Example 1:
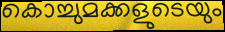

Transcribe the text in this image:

കൊച്ചുമക്കളുടെയും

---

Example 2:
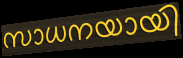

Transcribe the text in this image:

സാധനയായി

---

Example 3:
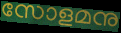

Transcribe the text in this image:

സോളമനു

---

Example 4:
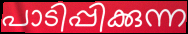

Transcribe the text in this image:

പാടിപ്പിക്കുന്ന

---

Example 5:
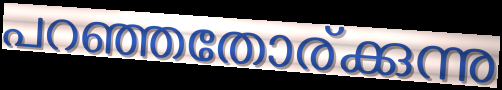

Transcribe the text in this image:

പറഞ്ഞതോര്ക്കുന്നു